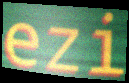
ezi